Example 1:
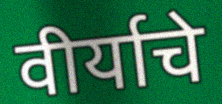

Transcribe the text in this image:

वीर्याचे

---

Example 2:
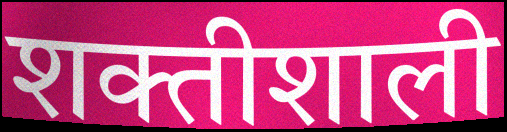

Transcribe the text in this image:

शक्तीशाली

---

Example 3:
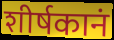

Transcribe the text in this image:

शीर्षकानं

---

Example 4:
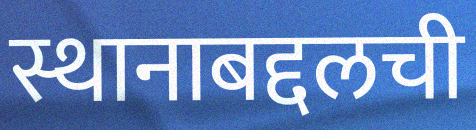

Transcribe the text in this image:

स्थानाबद्दलची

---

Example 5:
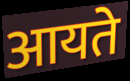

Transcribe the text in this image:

आयते